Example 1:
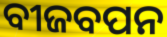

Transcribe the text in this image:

ବୀଜବପନ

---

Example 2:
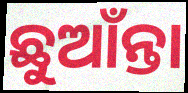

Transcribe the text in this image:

ଛୁଆଁନ୍ତା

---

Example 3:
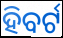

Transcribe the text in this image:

ହିବର୍ଟ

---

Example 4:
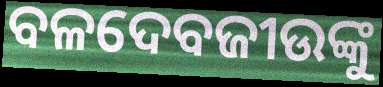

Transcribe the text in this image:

ବଳଦେବଜୀଉଙ୍କୁ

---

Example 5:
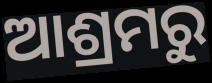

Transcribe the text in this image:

ଆଶ୍ରମରୁ